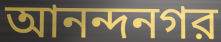
আনন্দনগর